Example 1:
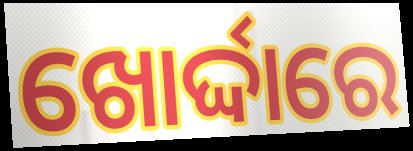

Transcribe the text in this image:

ଖୋର୍ଦ୍ଦାରେ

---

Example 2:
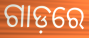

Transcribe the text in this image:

ଗାଡ଼ରେ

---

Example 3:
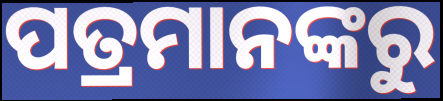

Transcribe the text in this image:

ପତ୍ରମାନଙ୍କରୁ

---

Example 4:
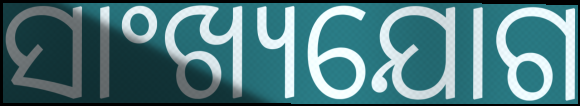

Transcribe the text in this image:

ସାଂଖ୍ଯଯୋଗ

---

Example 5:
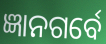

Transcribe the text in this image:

ଜ୍ଞାନଗର୍ବେ